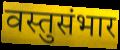
वस्तुसंभार